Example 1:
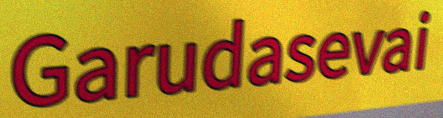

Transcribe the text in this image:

Garudasevai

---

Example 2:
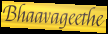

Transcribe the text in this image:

Bhaavageethe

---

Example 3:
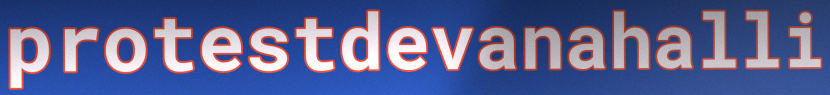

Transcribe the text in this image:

protestdevanahalli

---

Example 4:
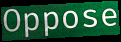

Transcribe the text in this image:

Oppose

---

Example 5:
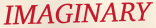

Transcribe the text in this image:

IMAGINARY